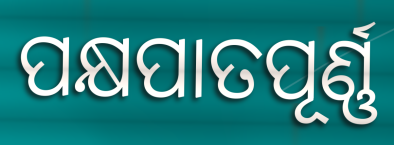
ପକ୍ଷପାତପୂର୍ଣ୍ଣ